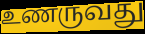
உணருவது